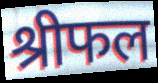
श्रीफल